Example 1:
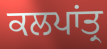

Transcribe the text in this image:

ਕਲਪਾਂਤ੍ਰ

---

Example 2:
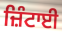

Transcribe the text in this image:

ਜ਼ਿੰਟਾਈ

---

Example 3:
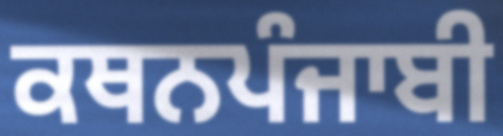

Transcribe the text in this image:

ਕਥਨਪੰਜਾਬੀ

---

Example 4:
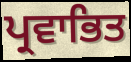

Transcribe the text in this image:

ਪ੍ਰਵਾਭਿਤ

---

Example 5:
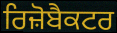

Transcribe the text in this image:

ਰਿਜ਼ੋਬੈਕਟਰ